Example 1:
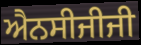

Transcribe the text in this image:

ਐਨਸੀਜੀਜੀ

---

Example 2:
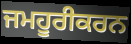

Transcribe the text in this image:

ਜਮਹੂਰੀਕਰਨ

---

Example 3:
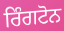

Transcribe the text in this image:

ਰਿੰਗਟੋਨ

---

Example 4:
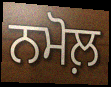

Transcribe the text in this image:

ਨਮੋਲ਼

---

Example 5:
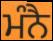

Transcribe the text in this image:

ਮੰਨੈ